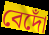
বেদোঁ